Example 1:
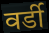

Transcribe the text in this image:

वर्डी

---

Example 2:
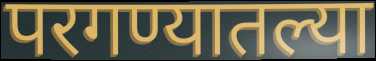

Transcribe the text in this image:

परगण्यातल्या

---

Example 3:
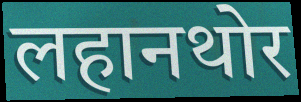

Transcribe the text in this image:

लहानथोर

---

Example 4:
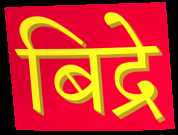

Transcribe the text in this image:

बिद्रे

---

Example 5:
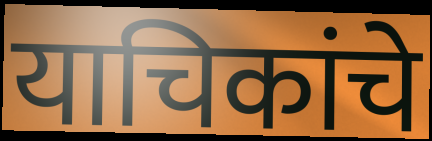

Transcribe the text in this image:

याचिकांचे